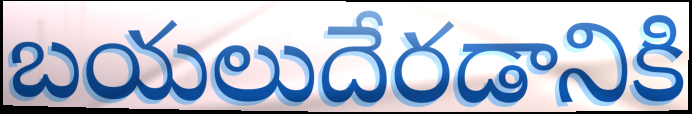
బయలుదేరడానికి